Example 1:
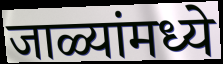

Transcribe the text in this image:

जाळ्यांमध्ये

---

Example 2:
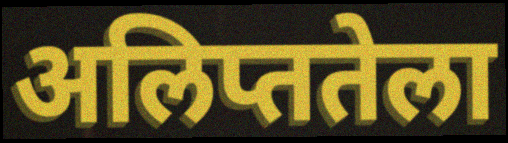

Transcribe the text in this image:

अलिप्ततेला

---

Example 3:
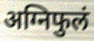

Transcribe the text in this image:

अग्निफुलं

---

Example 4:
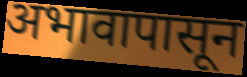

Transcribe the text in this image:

अभावापासून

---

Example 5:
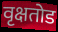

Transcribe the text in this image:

वृक्षतोड